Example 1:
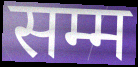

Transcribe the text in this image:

सम्म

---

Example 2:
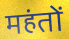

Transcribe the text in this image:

महंतों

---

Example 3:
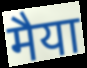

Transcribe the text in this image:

मैया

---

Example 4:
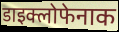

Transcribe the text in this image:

डाइक्लोफेनाक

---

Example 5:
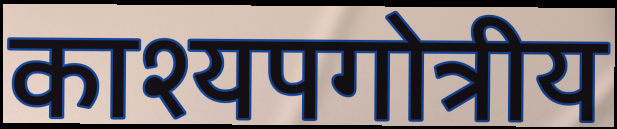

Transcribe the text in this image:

काश्यपगोत्रीय